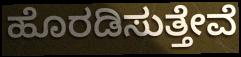
ಹೊರಡಿಸುತ್ತೇವೆ